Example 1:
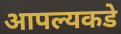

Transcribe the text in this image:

आपल्यकडे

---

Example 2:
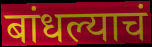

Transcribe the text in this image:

बांधल्याचं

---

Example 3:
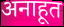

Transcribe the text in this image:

अनाहूत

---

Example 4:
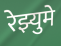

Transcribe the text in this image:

रेझ्युमे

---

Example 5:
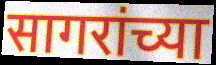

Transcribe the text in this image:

सागरांच्या